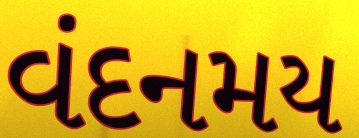
વંદનમય